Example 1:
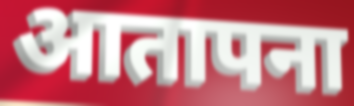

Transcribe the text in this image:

आतापना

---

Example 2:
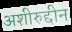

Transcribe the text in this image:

अशीरुद्दीन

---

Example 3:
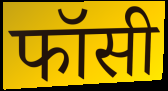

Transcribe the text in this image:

फॉसी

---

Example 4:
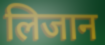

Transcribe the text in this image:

लिजान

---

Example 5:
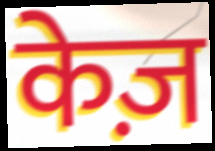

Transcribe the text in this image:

केज़